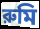
রুমি